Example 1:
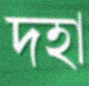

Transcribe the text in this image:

দহা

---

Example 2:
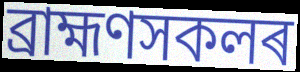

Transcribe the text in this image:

ব্ৰাহ্মণসকলৰ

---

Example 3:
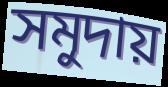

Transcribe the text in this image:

সমুদায়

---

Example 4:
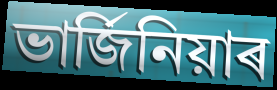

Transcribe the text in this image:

ভাৰ্জিনিয়াৰ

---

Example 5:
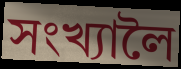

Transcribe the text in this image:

সংখ্যালৈ